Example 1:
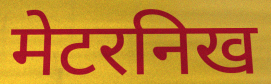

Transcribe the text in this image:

मेटरनिख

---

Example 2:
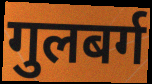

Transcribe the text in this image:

गुलबर्ग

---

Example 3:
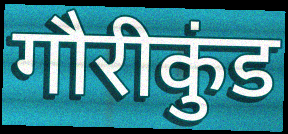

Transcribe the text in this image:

गौरीकुंड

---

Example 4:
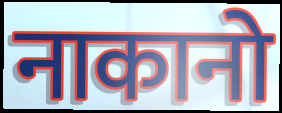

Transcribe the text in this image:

नाकानो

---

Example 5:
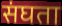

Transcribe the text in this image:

संघता